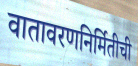
वातावरणनिर्मितीची